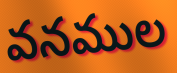
వనముల